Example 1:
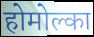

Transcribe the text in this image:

होमोल्का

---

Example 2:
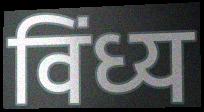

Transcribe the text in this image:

विंध्य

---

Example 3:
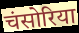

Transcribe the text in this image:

चंसोरिया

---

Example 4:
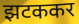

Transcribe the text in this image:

झटककर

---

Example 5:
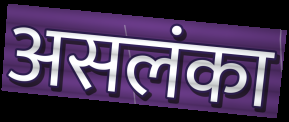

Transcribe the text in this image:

असलंका